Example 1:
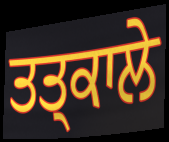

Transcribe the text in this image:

ਤਤ੍ਕਾਲੇ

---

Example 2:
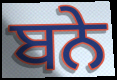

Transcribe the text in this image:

ਬਨੇ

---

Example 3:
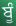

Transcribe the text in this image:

ਬੂੰ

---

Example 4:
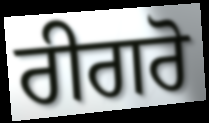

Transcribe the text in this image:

ਰੀਗਰੋ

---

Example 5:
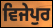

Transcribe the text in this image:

ਵਿਜੇਪੁਰ